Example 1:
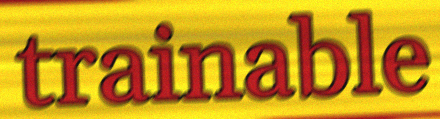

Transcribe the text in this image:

trainable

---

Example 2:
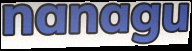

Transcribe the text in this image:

nanagu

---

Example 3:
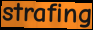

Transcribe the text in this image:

strafing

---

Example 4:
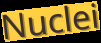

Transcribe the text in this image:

Nuclei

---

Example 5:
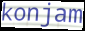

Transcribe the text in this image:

konjam